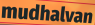
mudhalvan